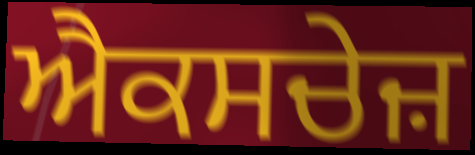
ਐਕਸਚੇਜ਼